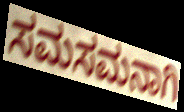
ಸಮಸಮನಾಗಿ